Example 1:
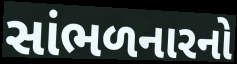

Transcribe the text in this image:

સાંભળનારનો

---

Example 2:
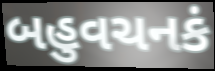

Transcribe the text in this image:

બહુવચનકં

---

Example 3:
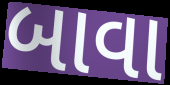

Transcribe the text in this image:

બાવા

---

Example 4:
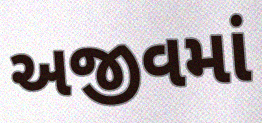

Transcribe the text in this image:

અજીવમાં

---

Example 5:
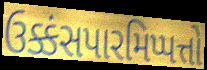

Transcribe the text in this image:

ઉક્કંસપારમિપ્પત્તો